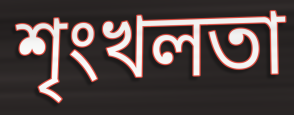
শৃংখলতা